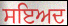
ਸਇਅਦ